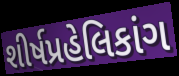
શીર્ષપ્રહેલિકાંગ